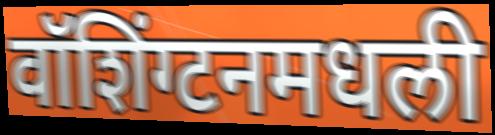
वॉशिंग्टनमधली